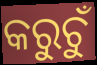
କରୁଚୁଁ